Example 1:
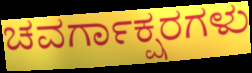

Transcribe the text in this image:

ಚವರ್ಗಾಕ್ಷರಗಳು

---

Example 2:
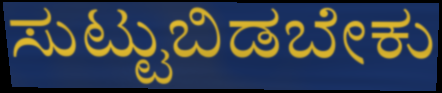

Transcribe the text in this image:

ಸುಟ್ಟುಬಿಡಬೇಕು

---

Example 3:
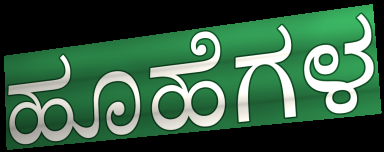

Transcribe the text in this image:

ಹೂಹೆಗಳ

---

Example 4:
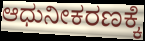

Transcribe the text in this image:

ಆಧುನೀಕರಣಕ್ಕೆ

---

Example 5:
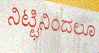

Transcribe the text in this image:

ನಿಟ್ಟಿನಿಂದಲೂ